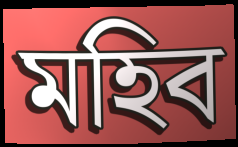
মহিব